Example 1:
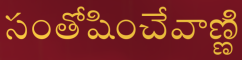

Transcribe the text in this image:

సంతోషించేవాణ్ణి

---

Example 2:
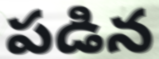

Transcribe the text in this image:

పడిన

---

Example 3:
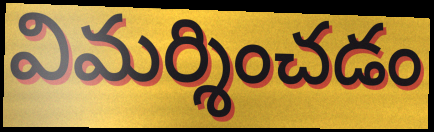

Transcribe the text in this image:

విమర్శించడం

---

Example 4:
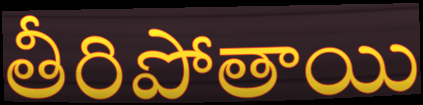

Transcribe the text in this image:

తీరిపోతాయి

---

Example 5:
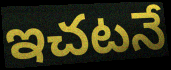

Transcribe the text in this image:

ఇచటనే